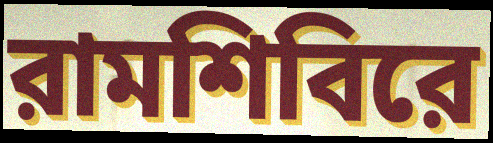
রামশিবিরে